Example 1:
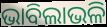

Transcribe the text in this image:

ଭାବିଲାଭଳି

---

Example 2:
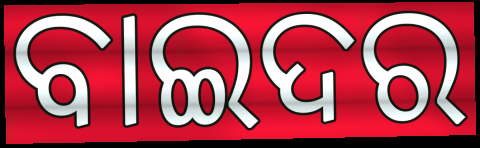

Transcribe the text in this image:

ବାଇଦର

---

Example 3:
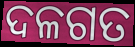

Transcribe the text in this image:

ଦଳଗତ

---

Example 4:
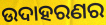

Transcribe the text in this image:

ଉଦାହରଣର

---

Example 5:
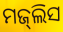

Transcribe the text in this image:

ମଜ୍‌ଲିସ